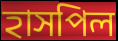
হাসপিল